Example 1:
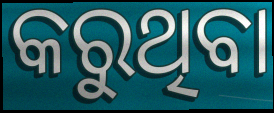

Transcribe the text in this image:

କରୁଥିବା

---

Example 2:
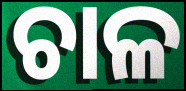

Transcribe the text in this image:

ଚାଳ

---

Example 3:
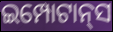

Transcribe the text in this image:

ଇମ୍ପୋଟାନ୍‌ସ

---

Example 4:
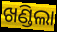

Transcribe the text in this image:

ଖଣ୍ଡିଲା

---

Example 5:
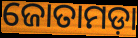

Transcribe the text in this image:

ଜୋତାମଡ଼ା